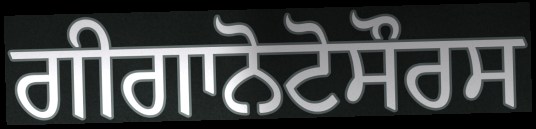
ਗੀਗਾਨੋਟੋਸੌਰਸ